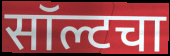
सॉल्टचा